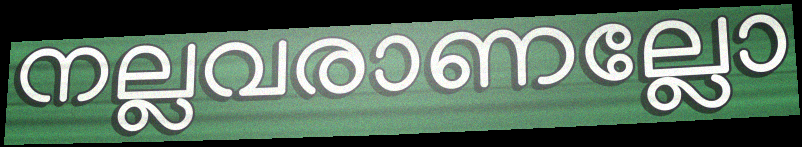
നല്ലവരാണല്ലോ